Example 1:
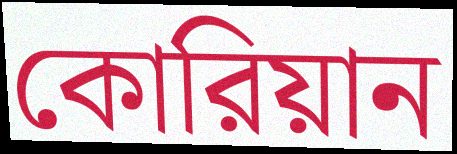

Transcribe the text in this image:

কোরিয়ান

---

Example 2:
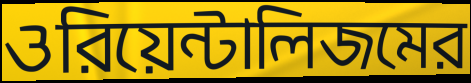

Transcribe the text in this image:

ওরিয়েন্টালিজমের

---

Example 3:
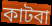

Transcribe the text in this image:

কাটবা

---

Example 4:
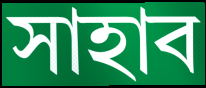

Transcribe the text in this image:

সাহাব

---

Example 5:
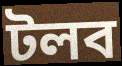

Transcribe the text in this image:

টলব